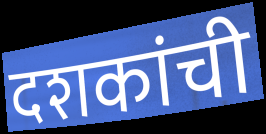
दशकांची